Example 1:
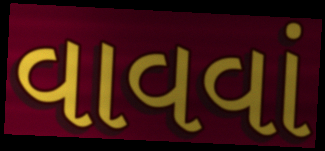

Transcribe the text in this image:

વાવવાં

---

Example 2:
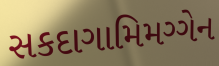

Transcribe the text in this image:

સકદાગામિમગ્ગેન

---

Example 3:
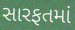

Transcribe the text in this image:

સારફતમાં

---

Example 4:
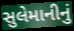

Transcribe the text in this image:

સુલેમાનીનું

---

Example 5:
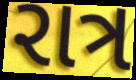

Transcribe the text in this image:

રાત્ર